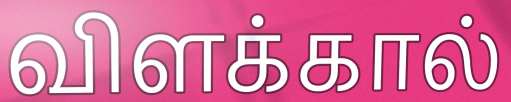
விளக்கால்